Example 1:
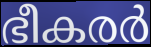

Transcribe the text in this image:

ഭീകരർ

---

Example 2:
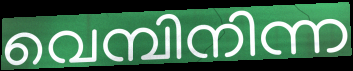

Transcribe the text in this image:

വെമ്പിനിന്ന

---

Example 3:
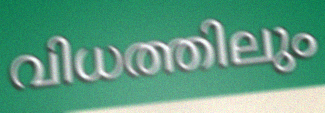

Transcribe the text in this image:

വിധത്തിലും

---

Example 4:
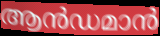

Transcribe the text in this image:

ആൻഡമാൻ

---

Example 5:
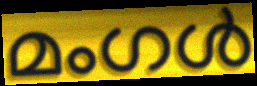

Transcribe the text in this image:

മംഗൾ